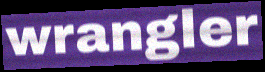
wrangler